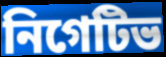
নিগেটিভ